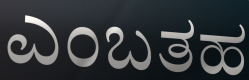
ಎಂಬತಹ